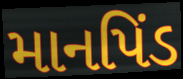
માનપિંડ